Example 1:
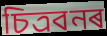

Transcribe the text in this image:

চিত্ৰবনৰ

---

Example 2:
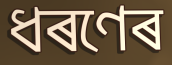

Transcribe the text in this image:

ধৰণেৰ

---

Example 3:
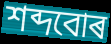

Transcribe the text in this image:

শব্দবোৰ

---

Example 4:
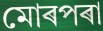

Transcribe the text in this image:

মোৰপৰা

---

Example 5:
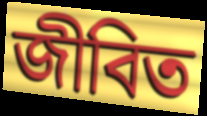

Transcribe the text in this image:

জীবিত